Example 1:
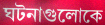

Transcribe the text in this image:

ঘটনাগুলোকে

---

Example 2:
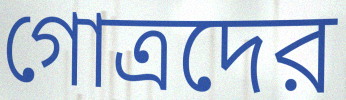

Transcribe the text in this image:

গোত্রদের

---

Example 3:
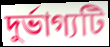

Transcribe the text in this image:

দুর্ভাগ্যটি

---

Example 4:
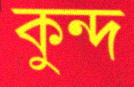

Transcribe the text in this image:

কুন্দ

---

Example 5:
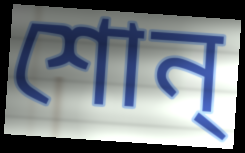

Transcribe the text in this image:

শোন্